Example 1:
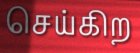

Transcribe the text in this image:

செய்கிற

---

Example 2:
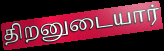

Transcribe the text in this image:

திறனுடையார்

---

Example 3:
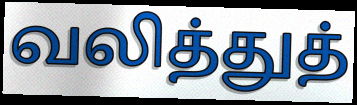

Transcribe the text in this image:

வலித்துத்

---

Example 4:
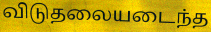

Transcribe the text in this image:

விடுதலையடைந்த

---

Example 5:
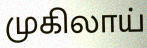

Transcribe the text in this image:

முகிலாய்